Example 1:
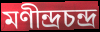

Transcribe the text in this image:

মণীন্দ্রচন্দ্র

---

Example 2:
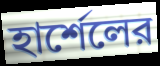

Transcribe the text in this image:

হার্শেলের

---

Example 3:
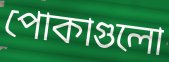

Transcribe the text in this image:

পোকাগুলো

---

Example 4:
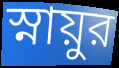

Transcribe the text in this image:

স্নায়ুর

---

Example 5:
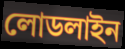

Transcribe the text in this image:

লোডলাইন